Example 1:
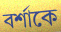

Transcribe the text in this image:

বর্শাকে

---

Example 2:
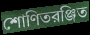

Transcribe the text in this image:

শোণিতরঞ্জিত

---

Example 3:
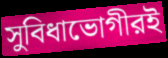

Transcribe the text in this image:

সুবিধাভোগীরই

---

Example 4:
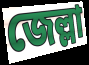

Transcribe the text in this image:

জেল্লা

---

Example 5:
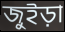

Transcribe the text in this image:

জুইড়া